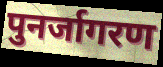
पुनर्जागरण